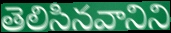
తెలిసినవానిని